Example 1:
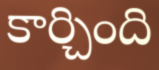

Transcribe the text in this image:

కార్చింది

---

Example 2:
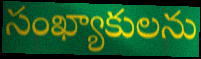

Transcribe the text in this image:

సంఖ్యాకులను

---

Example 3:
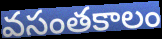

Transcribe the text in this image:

వసంతకాలం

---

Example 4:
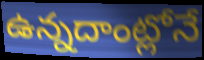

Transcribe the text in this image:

ఉన్నదాంట్లోనే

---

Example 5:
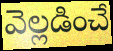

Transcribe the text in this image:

వెల్లడించే